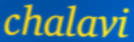
chalavi